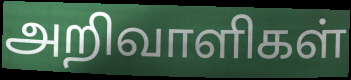
அறிவாளிகள்